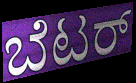
ಬೆಟರ್